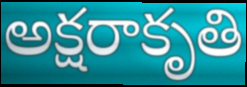
అక్షరాకృతి